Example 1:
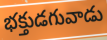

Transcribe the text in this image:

భక్తుడగువాడు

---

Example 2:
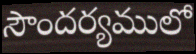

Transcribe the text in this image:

సౌందర్యములో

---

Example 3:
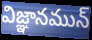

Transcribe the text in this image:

విజ్ఞానమున్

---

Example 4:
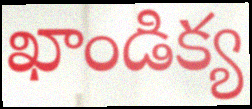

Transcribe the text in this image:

ఖాండిక్య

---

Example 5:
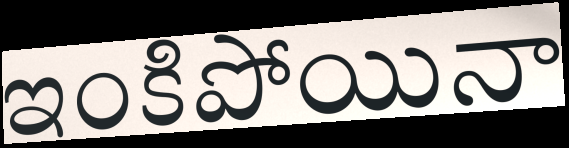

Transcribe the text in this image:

ఇంకిపోయినా